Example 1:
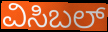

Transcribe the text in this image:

ವಿಸಿಬಲ್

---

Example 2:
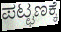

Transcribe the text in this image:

ಪಟ್ಟಣಕ್ಕೆ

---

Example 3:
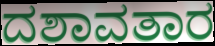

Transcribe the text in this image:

ದಶಾವತಾರ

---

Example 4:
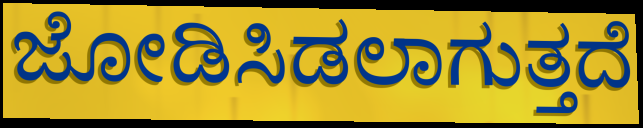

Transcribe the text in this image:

ಜೋಡಿಸಿಡಲಾಗುತ್ತದೆ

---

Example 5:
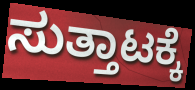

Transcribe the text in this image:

ಸುತ್ತಾಟಕ್ಕೆ